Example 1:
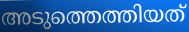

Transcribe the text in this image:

അടുത്തെത്തിയത്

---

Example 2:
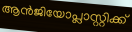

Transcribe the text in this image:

ആൻജിയോപ്ലാസ്റ്റിക്ക്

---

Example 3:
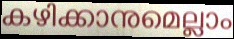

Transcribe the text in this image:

കഴിക്കാനുമെല്ലാം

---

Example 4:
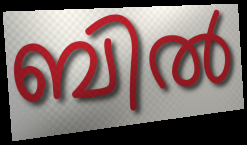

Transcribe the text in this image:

ബിൽ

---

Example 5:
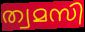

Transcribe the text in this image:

ത്വമസി